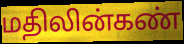
மதிலின்கண்